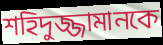
শহিদুজ্জামানকে